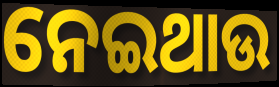
ନେଇଥାଉ